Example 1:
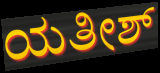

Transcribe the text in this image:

ಯತೀಶ್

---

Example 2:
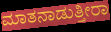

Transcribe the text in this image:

ಮಾತನಾಡುತ್ತೀರಾ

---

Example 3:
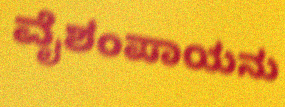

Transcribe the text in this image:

ವೈಶಂಪಾಯನು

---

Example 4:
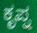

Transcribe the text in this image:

ಕೃಪ್ನ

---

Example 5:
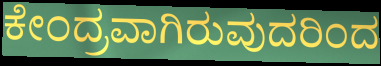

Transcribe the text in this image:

ಕೇಂದ್ರವಾಗಿರುವುದರಿಂದ